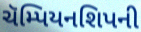
ચૅમ્પિયનશિપની